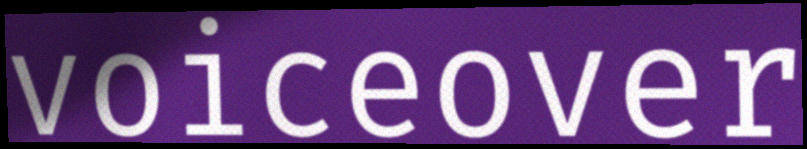
voiceover